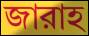
জারাহ